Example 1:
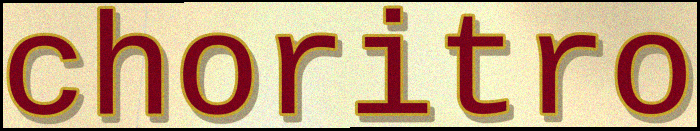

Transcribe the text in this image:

choritro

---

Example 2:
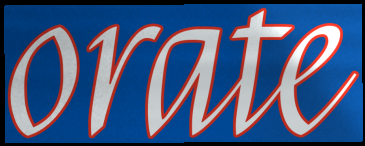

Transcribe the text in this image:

orate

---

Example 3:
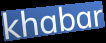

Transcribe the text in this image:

khabar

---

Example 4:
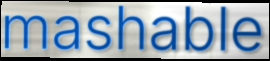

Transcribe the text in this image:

mashable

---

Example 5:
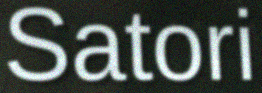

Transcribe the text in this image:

Satori